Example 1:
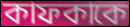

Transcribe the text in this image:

কাফকাকে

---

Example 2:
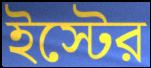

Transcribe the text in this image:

ইস্টের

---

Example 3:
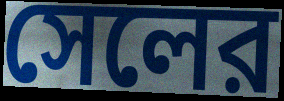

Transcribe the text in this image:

সেলের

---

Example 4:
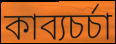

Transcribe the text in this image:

কাব্যচর্চা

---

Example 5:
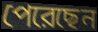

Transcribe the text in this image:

পেরেছেন